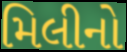
મિલીનો